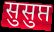
सुसुप्त